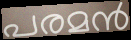
പരമൻ